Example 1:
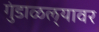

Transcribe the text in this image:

गुंडाळल्यावर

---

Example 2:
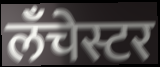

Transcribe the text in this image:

लँचेस्टर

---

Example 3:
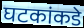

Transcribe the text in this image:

घटकांकडे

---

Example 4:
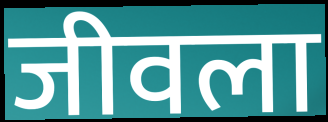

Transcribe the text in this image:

जीवला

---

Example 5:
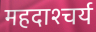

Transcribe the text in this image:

महदाश्चर्य